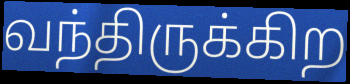
வந்திருக்கிற